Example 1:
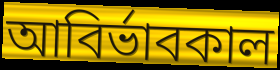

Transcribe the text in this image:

আবির্ভাবকাল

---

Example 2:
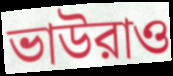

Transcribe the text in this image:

ভাউরাও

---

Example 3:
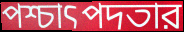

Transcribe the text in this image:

পশ্চাৎপদতার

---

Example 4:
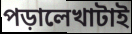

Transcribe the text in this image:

পড়ালেখাটাই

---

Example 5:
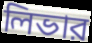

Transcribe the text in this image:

লিভার